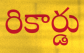
రికార్డు